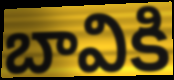
బావికి